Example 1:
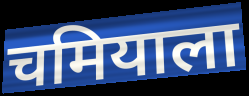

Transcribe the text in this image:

चमियाला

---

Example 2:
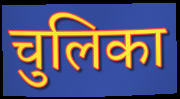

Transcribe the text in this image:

चुलिका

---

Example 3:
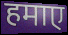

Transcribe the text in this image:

हमाए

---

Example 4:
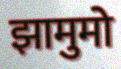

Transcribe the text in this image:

झामुमो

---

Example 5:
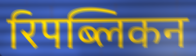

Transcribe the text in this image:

रिपब्लिकन